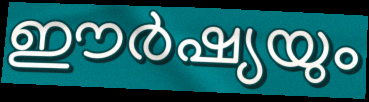
ഈർഷ്യയും